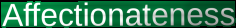
Affectionateness